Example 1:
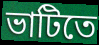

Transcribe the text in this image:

ভাটিতে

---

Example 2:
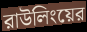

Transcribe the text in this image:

রাউলিংয়ের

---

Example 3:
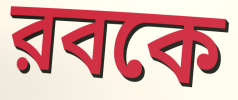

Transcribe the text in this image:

রবকে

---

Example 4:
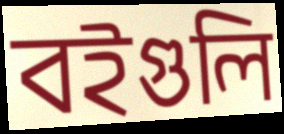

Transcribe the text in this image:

বইগুলি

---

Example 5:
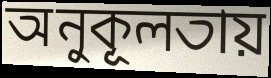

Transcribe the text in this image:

অনুকূলতায়